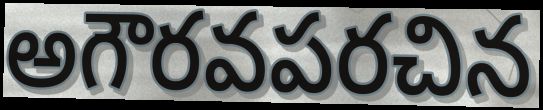
అగౌరవపరచిన